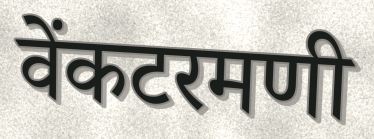
वेंकटरमणी